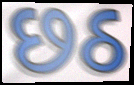
છઠ